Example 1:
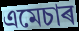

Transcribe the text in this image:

এমেচাৰ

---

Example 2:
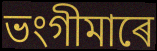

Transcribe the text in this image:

ভংগীমাৰে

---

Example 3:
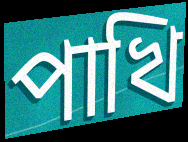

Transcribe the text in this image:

পাখি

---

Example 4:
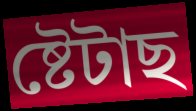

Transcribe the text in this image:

ষ্টেটাছ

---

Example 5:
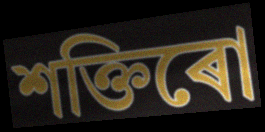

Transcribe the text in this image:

শক্তিৰো